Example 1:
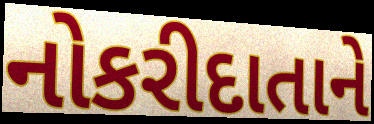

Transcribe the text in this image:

નોકરીદાતાને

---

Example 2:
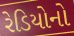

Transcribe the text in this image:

રેડિયોનો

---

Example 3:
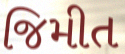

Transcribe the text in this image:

જિમીત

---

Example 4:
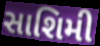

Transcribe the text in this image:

સાશિમી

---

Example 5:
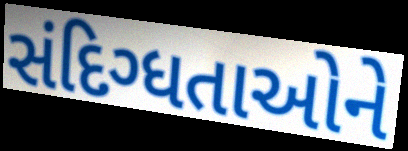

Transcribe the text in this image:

સંદિગ્ધતાઓને